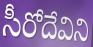
సీరోదేవిని